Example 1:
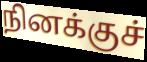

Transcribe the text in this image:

நினக்குச்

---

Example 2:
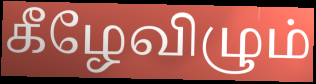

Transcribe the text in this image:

கீழேவிழும்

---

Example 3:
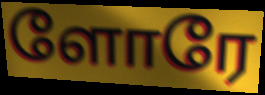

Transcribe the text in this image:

ளோரே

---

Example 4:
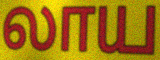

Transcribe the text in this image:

லாய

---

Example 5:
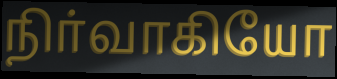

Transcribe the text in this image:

நிர்வாகியோ